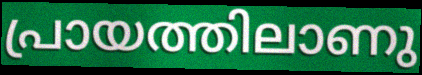
പ്രായത്തിലാണു